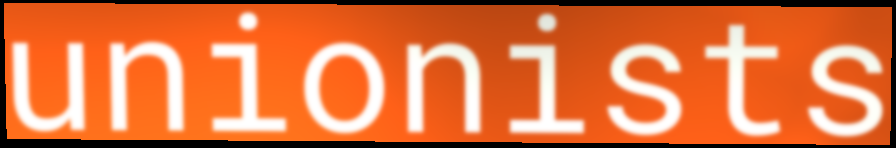
unionists